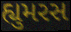
હ્યુમરસ